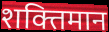
शक्तिमान